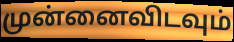
முன்னைவிடவும்